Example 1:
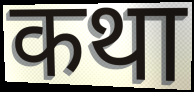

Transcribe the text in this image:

कथा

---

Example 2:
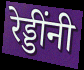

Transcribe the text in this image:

रेड्डींनी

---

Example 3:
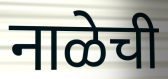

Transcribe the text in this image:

नाळेची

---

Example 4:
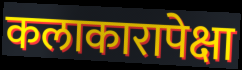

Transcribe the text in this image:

कलाकारापेक्षा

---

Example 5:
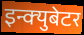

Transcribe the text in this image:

इन्क्‍युबेटर